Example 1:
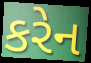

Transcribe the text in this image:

કરેન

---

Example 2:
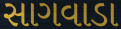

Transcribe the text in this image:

સાગવાડા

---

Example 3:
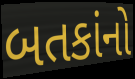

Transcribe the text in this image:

બતકાંનો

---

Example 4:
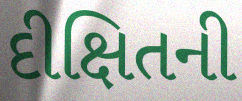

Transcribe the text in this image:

દીક્ષિતની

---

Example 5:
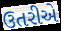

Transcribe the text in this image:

ઉતરીએ